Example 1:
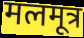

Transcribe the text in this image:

मलमूत्र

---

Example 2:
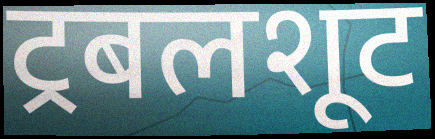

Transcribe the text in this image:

ट्रबलशूट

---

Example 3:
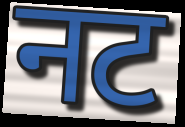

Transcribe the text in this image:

नट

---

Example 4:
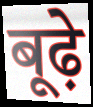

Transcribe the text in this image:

बूढ़े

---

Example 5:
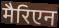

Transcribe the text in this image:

मैरिएन